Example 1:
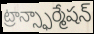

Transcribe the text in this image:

ట్రాన్స్ఫార్మేషన్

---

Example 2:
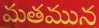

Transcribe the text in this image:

మతమున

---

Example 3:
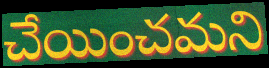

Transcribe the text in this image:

చేయించమని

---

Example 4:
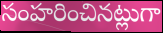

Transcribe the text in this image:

సంహరించినట్లుగా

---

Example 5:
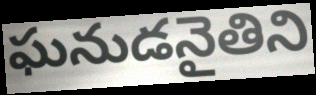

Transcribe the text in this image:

ఘనుడనైతిని